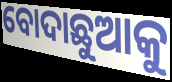
ବୋଦାଛୁଆକୁ